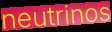
neutrinos